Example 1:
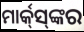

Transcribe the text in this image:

ମାର୍କ୍‌ସ୍‌ଙ୍କର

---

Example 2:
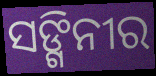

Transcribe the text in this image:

ସଙ୍ଗିନୀର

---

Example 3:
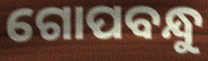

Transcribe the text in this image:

ଗୋପବନ୍ଧୁ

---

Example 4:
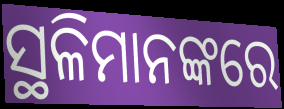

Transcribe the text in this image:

ସ୍ଥଳିମାନଙ୍କରେ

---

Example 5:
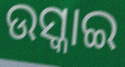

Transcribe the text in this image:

ଉସ୍କାଇ